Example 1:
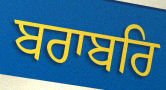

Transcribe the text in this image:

ਬਰਾਬਰਿ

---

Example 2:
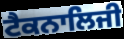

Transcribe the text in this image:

ਟੈਕਨਾਲਿਜੀ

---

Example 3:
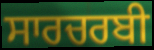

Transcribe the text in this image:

ਸਾਰਚਰਬੀ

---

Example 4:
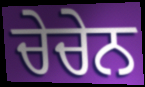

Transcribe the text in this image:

ਚੇਚੇਨ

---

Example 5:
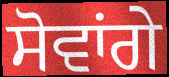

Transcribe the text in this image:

ਸੋਵਾਂਗੇ